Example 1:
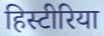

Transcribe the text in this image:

हिस्टीरिया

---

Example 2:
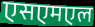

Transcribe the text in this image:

एसएमएल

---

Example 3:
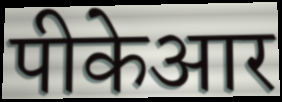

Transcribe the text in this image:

पीकेआर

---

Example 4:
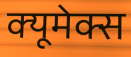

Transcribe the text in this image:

क्यूमेक्स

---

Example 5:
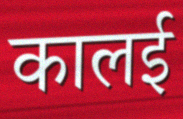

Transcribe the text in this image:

कालई